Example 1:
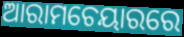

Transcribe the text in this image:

ଆରାମଚେୟାରରେ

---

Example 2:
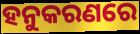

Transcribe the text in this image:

ହନୁକରଣରେ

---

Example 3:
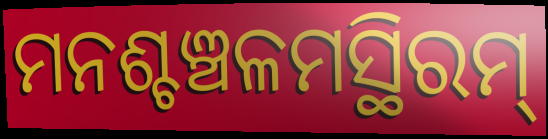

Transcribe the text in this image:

ମନଶ୍ଚଞ୍ଚଳମସ୍ଥିରମ୍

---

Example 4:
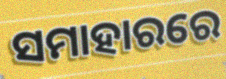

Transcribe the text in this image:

ସମାହାରରେ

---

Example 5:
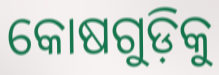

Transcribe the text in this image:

କୋଷଗୁଡ଼ିକୁ